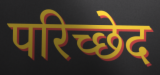
परिच्छेद